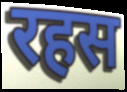
रहस